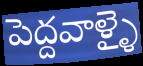
పెద్దవాళ్ళై